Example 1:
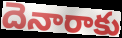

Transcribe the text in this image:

దెనారాకు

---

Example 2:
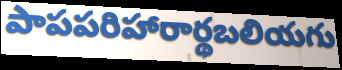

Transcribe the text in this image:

పాపపరిహారార్థబలియగు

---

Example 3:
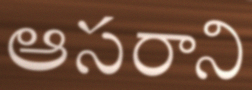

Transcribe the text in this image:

ఆసరాని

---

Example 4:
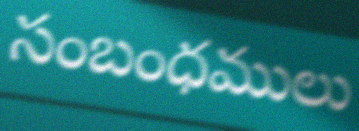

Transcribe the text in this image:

సంబంధములు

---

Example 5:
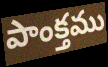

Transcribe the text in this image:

పాంక్తము